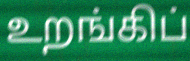
உறங்கிப்